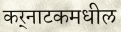
कर्नाटकमधील